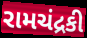
રામચંદ્રકી